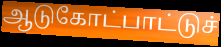
ஆடுகோட்பாட்டுச்